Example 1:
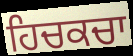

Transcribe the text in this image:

ਹਿਚਕਚਾ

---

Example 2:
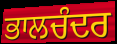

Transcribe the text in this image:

ਭਾਲਚੰਦਰ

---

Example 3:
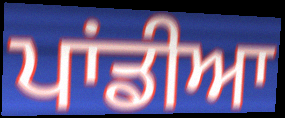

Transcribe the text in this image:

ਪਾਂਡੀਆ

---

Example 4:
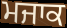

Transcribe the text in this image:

ਮਜਾਕ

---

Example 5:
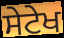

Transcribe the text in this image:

ਸੇਟੇਖ